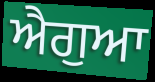
ਐਗੁਆ